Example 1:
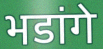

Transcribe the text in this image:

भडांगे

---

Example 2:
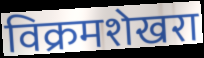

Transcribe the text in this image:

विक्रमशेखरा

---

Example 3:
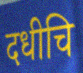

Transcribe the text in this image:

दधीचि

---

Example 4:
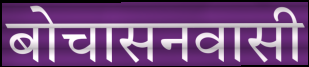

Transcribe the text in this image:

बोचासनवासी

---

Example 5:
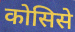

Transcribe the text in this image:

कोसिसे